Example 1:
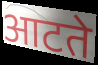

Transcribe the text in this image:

आटते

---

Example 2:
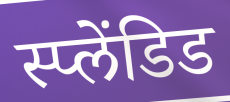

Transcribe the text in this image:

स्प्लेंडिड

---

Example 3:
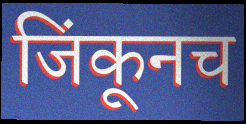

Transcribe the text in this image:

जिंकूनच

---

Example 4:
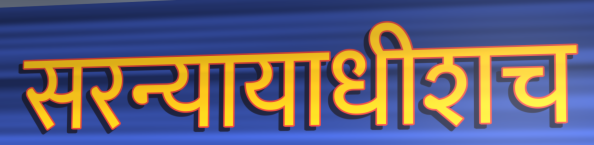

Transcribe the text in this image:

सरन्यायाधीशच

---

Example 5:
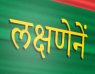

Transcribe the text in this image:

लक्षणेनें